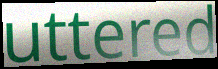
uttered